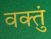
वक्तुं